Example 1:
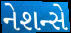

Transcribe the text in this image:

નેશન્સે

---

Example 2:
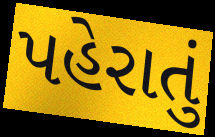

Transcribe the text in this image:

પહેરાતું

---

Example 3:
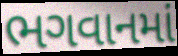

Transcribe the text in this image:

ભગવાનમાં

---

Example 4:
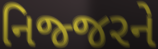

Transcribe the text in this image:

નિજ્જરને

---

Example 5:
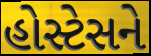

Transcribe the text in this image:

હોસ્ટેસને